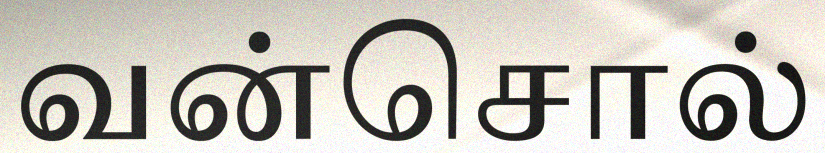
வன்சொல்